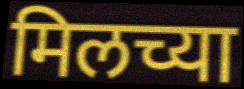
मिलच्या